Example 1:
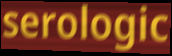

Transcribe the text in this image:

serologic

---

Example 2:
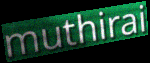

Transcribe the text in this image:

muthirai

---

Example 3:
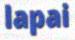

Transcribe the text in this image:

lapai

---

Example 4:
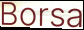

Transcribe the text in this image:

Borsa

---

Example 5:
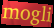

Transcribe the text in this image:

mogli